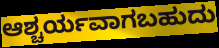
ಆಶ್ಚರ್ಯವಾಗಬಹುದು